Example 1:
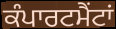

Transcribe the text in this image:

ਕੰਪਾਰਟਮੈਂਟਾਂ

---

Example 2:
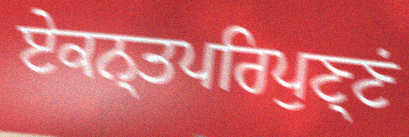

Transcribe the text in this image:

ਏਕਨ੍ਤਪਰਿਪੁਣ੍ਣਂ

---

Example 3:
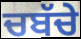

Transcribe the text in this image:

ਚਬੱਚੇ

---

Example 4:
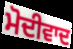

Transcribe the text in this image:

ਮੋਦੀਵਾਦ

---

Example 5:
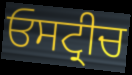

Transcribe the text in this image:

ਓਸਟ੍ਰੀਚ